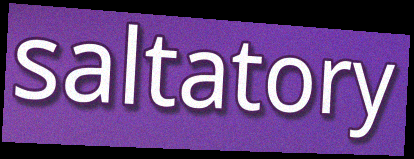
saltatory